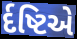
ર્દષ્ટિએ